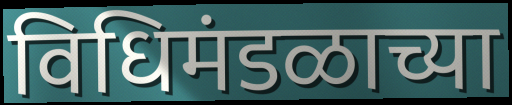
विधिमंडळाच्या